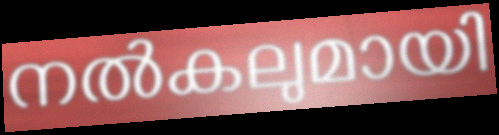
നൽകലുമായി